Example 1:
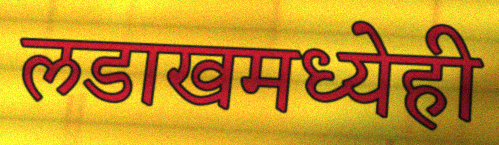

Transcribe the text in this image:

लडाखमध्येही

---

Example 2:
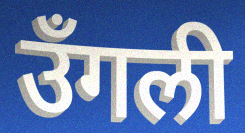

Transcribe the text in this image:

उँगली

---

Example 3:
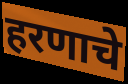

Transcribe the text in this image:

हरणाचे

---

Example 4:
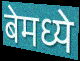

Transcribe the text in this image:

बेमध्ये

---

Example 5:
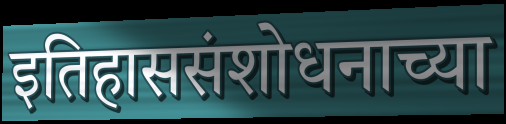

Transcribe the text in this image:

इतिहाससंशोधनाच्या